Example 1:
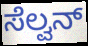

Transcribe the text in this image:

ಸೆಲ್ವನ್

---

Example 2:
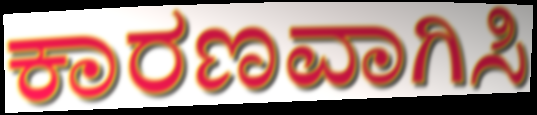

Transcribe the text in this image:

ಕಾರಣವಾಗಿಸಿ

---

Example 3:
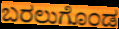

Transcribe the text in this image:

ಬರಲುಗೊಂಡ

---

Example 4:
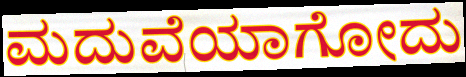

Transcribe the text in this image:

ಮದುವೆಯಾಗೋದು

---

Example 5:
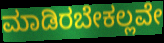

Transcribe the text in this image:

ಮಾಡಿರಬೇಕಲ್ಲವೇ